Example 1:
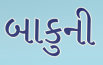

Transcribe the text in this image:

બાકુની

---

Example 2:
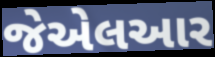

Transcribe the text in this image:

જેએલઆર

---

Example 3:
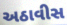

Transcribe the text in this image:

અઠાવીસ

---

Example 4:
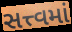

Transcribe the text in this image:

સત્ત્વમાં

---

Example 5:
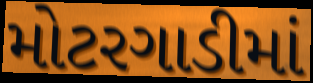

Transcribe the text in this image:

મોટરગાડીમાં